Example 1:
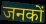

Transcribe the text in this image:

जनकों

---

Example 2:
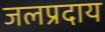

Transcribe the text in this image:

जलप्रदाय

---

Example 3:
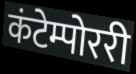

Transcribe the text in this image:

कंटेम्पोररी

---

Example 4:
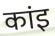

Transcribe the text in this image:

कांइ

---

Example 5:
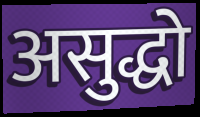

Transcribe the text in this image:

असुद्धो